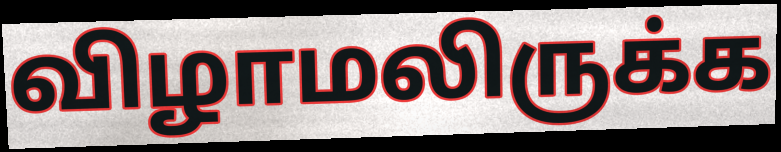
விழாமலிருக்க